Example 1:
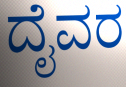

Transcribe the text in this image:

ದೈವರ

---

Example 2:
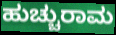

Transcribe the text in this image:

ಹುಚ್ಚುರಾಮ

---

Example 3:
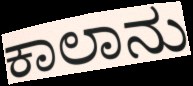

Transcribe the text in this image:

ಕಾಲಾನು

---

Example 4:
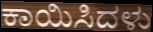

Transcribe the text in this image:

ಕಾಯಿಸಿದಳು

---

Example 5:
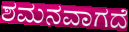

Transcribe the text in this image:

ಶಮನವಾಗದೆ